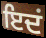
ਇਦਂ